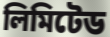
লিমিটেড